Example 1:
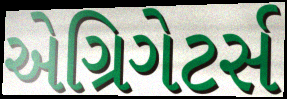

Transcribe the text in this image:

એગ્રિગેટર્સ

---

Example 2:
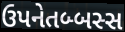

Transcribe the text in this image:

ઉપનેતબ્બસ્સ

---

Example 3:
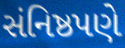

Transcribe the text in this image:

સંનિષ્ઠપણે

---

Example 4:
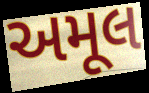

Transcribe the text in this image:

અમૂલ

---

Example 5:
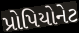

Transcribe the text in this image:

પ્રોપિયોનેટ